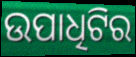
ଉପାଧିଟିର